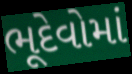
ભૂદેવોમાં